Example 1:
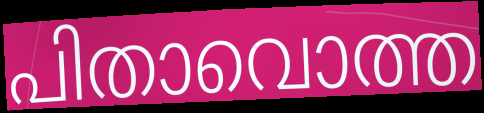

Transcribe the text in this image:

പിതാവൊത്ത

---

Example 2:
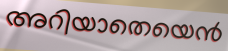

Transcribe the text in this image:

അറിയാതെയെൻ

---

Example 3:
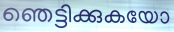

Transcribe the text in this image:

ഞെട്ടിക്കുകയോ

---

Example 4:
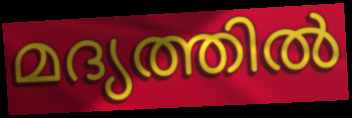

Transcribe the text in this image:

മദ്യത്തിൽ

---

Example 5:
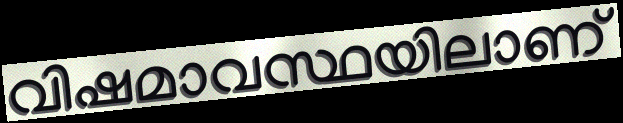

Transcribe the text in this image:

വിഷമാവസ്ഥയിലാണ്